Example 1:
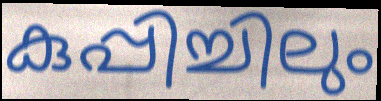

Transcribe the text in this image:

കുപ്പിച്ചിലും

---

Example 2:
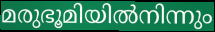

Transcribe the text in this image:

മരുഭൂമിയിൽനിന്നും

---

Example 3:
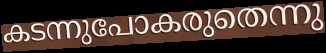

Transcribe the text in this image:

കടന്നുപോകരുതെന്നു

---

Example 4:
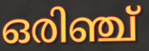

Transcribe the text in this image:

ഒരിഞ്ച്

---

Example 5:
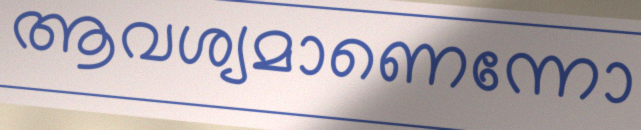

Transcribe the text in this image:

ആവശ്യമാണെന്നോ